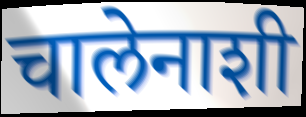
चालेनाशी